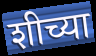
शीच्या